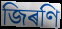
জিৰণি